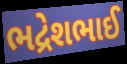
ભદ્રેશભાઈ